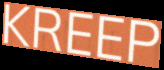
KREEP